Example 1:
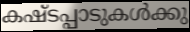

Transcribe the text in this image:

കഷ്ടപ്പാടുകൾക്കു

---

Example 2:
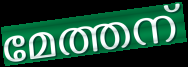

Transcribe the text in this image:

മേത്തന്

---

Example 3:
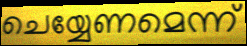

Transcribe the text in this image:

ചെയ്യേണമെന്ന്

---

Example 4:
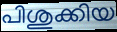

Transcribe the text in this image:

പിശുക്കിയ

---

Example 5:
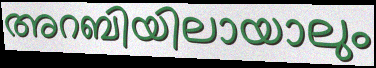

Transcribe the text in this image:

അറബിയിലായാലും